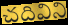
చదివిని